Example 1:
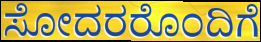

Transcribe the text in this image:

ಸೋದರರೊಂದಿಗೆ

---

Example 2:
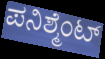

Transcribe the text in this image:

ಪನಿಶ್ಮೆಂಟ್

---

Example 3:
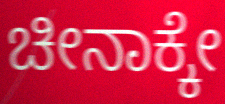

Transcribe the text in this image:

ಚೀನಾಕ್ಕೇ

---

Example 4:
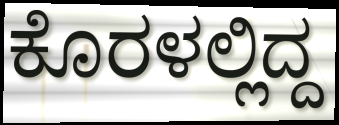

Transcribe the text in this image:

ಕೊರಳಲ್ಲಿದ್ದ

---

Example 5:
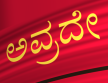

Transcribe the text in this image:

ಅವ್ರದೇ